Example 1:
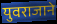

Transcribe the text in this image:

युवराजाने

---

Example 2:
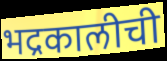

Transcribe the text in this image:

भद्रकालीची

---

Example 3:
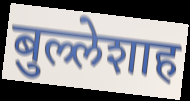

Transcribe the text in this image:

बुल्लेशाह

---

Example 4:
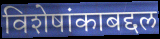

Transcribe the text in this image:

विशेषांकाबद्दल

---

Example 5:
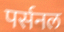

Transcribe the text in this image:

पर्सनल